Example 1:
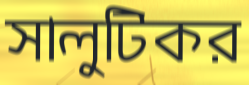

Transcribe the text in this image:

সালুটিকর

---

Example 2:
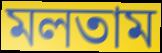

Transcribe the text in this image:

মলতাম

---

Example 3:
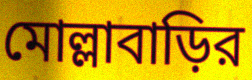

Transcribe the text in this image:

মোল্লাবাড়ির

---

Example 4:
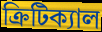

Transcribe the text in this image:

ক্রিটিক্যাল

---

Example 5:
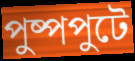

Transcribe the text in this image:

পুষ্পপুটে